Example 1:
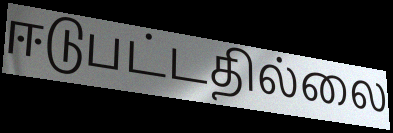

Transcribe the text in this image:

ஈடுபட்டதில்லை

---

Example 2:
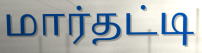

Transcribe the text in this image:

மார்தட்டி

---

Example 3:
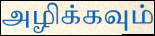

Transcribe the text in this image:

அழிக்கவும்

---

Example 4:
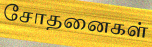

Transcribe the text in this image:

சோதனைகள்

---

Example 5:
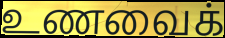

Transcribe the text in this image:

உணவைக்